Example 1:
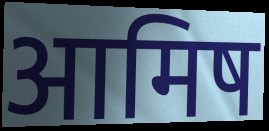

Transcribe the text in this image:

आमिष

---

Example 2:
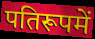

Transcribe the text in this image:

पतिरूपमें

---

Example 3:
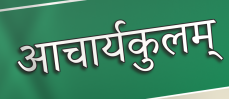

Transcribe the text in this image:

आचार्यकुलम्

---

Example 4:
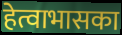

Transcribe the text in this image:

हेत्वाभासका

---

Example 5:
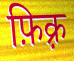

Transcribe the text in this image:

फ़िक़्र